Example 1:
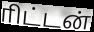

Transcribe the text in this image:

ரிட்டன்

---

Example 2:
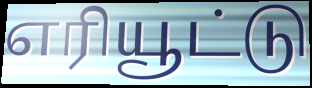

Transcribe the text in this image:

எரியூட்டு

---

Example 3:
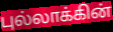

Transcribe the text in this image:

புல்லாக்கின்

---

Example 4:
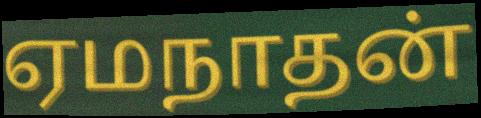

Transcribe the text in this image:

ஏமநாதன்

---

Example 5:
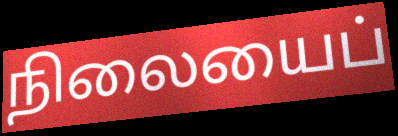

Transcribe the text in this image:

நிலையைப்